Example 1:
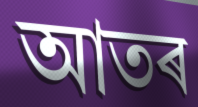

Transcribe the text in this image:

আতৰ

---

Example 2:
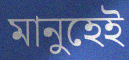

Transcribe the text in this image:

মানুহেই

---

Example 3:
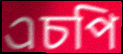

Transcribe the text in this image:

এচপি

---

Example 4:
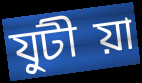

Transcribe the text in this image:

যুটীয়া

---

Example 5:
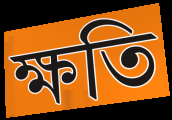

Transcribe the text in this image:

ক্ষতি